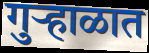
गुऱ्हाळात